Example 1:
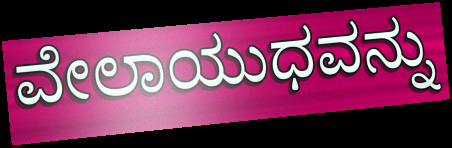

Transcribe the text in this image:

ವೇಲಾಯುಧವನ್ನು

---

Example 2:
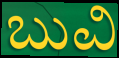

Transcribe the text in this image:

ಬುವಿ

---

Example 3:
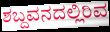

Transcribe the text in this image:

ಶಬ್ದವನದಲ್ಲಿರಿವ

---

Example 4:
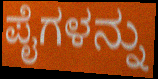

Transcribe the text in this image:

ಪೈಗಳನ್ನು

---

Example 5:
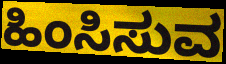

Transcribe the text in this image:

ಹಿಂಸಿಸುವ